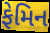
ફેમિન